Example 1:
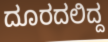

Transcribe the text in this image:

ದೂರದಲಿದ್ದ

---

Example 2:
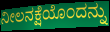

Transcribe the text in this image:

ನೀಲನಕ್ಷೆಯೊಂದನ್ನು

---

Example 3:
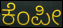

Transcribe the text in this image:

ಕೆಂಪೀ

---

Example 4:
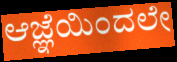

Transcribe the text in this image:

ಆಜ್ಞೆಯಿಂದಲೇ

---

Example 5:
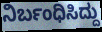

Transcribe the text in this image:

ನಿರ್ಬಂಧಿಸಿದ್ದು